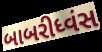
બાબરીધ્વંસ